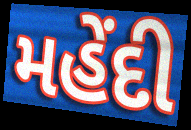
મહેંદી